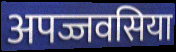
अपज्जवसिया